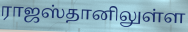
ராஜஸ்தானிலுள்ள